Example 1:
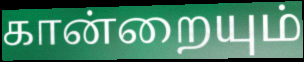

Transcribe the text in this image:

கான்றையும்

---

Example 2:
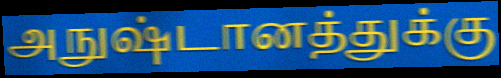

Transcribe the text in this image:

அநுஷ்டானத்துக்கு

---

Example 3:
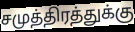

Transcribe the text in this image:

சமுத்திரத்துக்கு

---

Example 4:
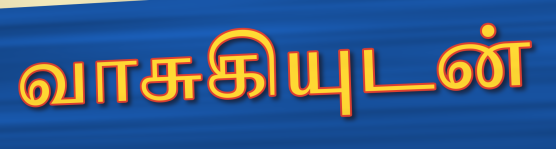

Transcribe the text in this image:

வாசுகியுடன்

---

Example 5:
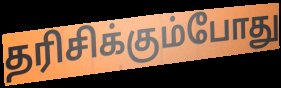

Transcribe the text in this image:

தரிசிக்கும்போது